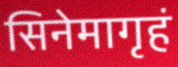
सिनेमागृहं